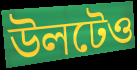
উলটেও